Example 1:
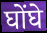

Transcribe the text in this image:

घोंघे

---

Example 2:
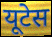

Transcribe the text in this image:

यूटेस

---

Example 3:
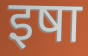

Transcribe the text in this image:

इषा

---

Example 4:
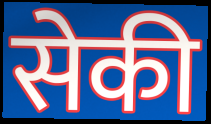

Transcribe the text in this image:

सेकी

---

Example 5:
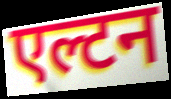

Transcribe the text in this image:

एल्टन